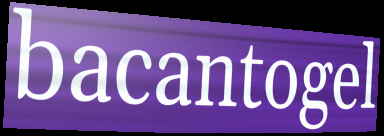
bacantogel